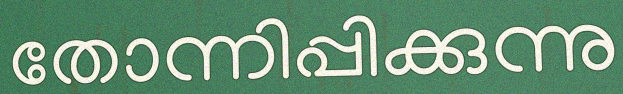
തോന്നിപ്പിക്കുന്നു